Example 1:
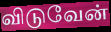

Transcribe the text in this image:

விடுவேன்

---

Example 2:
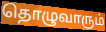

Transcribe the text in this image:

தொழுவாரும்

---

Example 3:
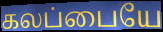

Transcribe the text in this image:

கலப்பையே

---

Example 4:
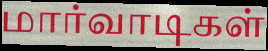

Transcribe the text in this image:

மார்வாடிகள்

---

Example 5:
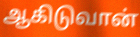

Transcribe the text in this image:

ஆகிடுவான்